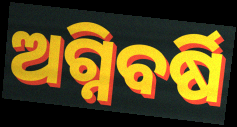
ଅଗ୍ନିବର୍ଷି